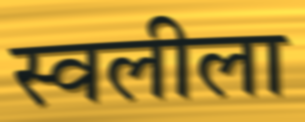
स्वलीला